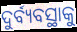
ଦୁର୍ବ୍ୟବସ୍ଥାକୁ